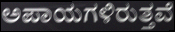
ಅಪಾಯಗಳಿರುತ್ತವೆ